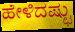
ಹೇಳಿದಷ್ಟು